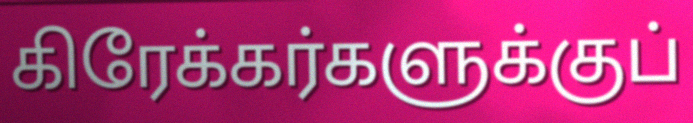
கிரேக்கர்களுக்குப்